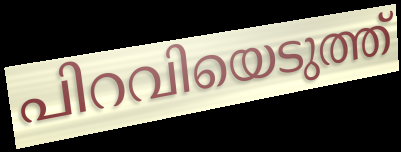
പിറവിയെടുത്ത്